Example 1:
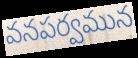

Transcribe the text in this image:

వనపర్వమున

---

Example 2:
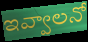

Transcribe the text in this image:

ఇవ్వాలనో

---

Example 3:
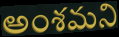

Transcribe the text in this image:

అంశమని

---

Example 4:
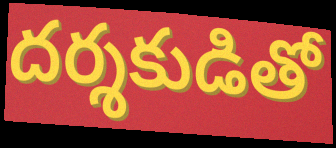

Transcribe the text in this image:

దర్శకుడితో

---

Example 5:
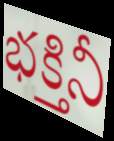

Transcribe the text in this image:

భక్తినీ